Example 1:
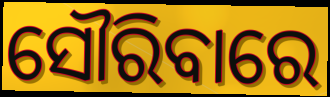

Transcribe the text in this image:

ସୌରିବାରେ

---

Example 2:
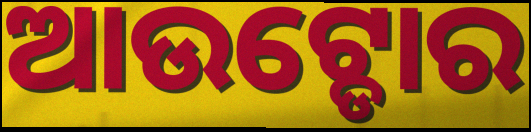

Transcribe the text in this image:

ଆଉଟ୍ଡୋର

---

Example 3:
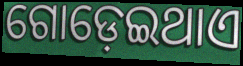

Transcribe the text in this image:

ଗୋଡ଼େଇଥାଏ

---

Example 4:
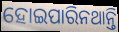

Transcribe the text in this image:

ହୋଇପାରିନଥାନ୍ତି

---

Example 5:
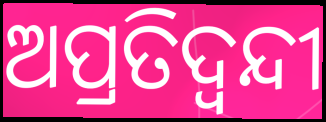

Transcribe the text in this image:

ଅପ୍ରତିଦ୍ବନ୍ଦୀ